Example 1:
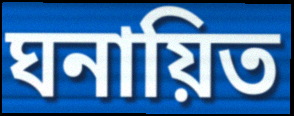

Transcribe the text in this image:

ঘনায়িত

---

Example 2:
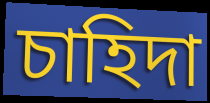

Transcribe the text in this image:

চাহিদা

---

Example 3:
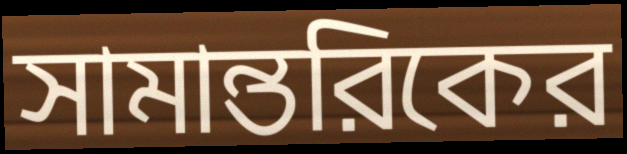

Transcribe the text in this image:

সামান্তরিকের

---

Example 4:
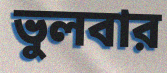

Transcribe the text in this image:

ভুলবার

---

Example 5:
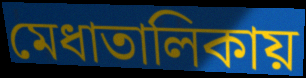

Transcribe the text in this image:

মেধাতালিকায়